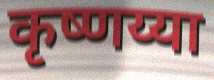
कृष्णय्या